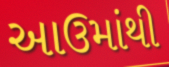
આઉમાંથી